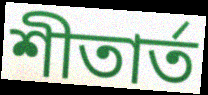
শীতাৰ্ত